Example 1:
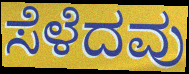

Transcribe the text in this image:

ಸೆಳೆದವು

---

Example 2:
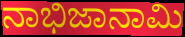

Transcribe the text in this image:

ನಾಭಿಜಾನಾಮಿ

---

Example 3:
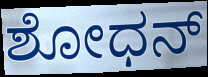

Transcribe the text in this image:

ಶೋಧನ್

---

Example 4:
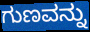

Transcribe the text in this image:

ಗುಣವನ್ನು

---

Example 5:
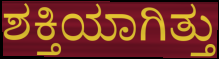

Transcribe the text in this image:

ಶಕ್ತಿಯಾಗಿತ್ತು